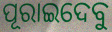
ପୂରାଇଦେବୁ